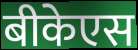
बीकेएस